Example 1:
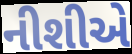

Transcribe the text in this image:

નીશીએ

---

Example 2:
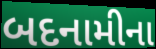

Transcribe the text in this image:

બદનામીના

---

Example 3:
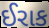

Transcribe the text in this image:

ઈરાક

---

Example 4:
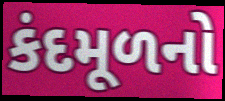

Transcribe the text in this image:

કંદમૂળનો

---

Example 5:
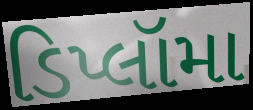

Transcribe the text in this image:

ડિપ્લૉમા